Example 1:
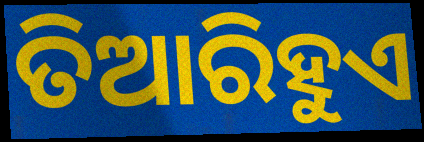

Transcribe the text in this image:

ତିଆରିହୁଏ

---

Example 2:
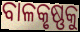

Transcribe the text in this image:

ବାଳକୃଷ୍ଣକୁ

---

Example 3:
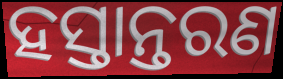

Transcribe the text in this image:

ହସ୍ତାନ୍ତରଣ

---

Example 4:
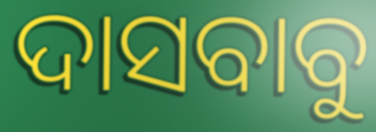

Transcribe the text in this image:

ଦାସବାବୁ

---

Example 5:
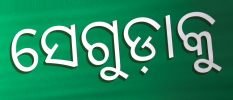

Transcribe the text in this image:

ସେଗୁଡ଼ାକୁ